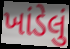
ખાંડેલું